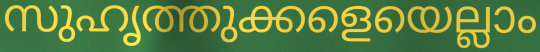
സുഹൃത്തുക്കളെയെല്ലാം